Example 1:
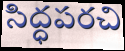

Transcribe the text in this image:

సిద్ధపరచి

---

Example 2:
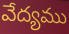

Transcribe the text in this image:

వేద్యము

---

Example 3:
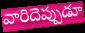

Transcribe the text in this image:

వారిదెప్పుడూ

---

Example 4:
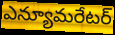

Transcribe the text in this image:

ఎన్యూమరేటర్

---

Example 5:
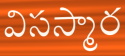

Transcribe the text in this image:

విసస్మార